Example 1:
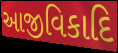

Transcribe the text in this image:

આજીવિકાદિ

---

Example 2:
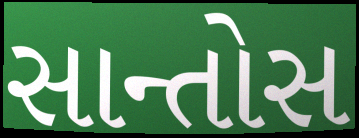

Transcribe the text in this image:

સાન્તોસ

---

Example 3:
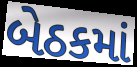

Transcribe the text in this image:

બેઠકમાં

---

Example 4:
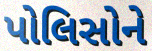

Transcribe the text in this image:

પોલિસોને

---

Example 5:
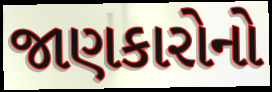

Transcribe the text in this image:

જાણકારોનો